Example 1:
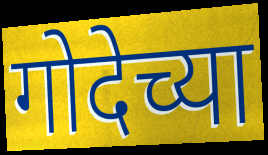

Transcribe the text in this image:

गोदेच्या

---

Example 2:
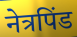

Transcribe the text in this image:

नेत्रपिंड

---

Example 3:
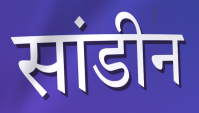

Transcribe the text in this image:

सांडीन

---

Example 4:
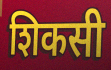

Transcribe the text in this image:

शिकसी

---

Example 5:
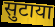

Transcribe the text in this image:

सुटाया